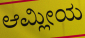
ಆಮ್ಲೀಯ